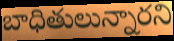
బాధితులున్నారని